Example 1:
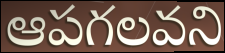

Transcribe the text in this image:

ఆపగలవని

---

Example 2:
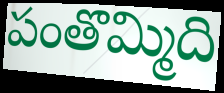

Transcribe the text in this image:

పంతొమ్మిది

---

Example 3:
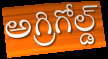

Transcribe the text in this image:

అగ్రిగోల్డ్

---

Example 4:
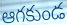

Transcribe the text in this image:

ఆగకుండ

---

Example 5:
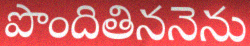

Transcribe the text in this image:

పొందితిననెను